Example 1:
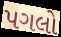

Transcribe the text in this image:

પગલો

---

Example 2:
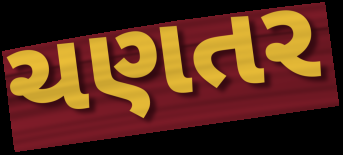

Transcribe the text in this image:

ચણતર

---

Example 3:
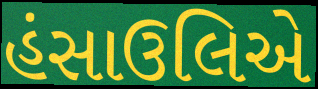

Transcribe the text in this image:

હંસાઉલિએ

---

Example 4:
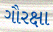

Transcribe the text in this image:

ગૌરક્ષા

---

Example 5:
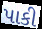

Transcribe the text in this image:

પાકી